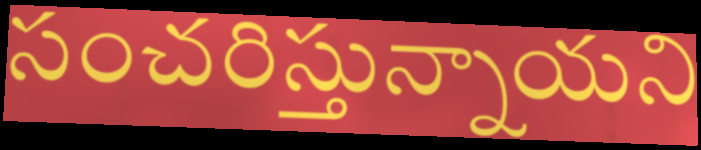
సంచరిస్తున్నాయని